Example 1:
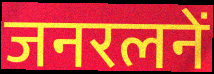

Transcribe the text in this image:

जनरलनें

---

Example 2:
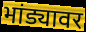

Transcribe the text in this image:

भांड्यावर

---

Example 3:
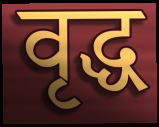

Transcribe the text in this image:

वृद्ध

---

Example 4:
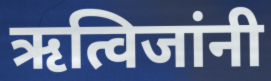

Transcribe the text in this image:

ऋत्विजांनी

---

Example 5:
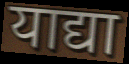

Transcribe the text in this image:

याद्या